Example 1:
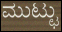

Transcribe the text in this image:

ಮುಟ್ಟು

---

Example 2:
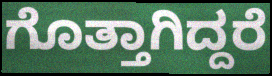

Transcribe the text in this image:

ಗೊತ್ತಾಗಿದ್ದರೆ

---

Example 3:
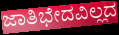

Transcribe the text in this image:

ಜಾತಿಭೇದವಿಲ್ಲದ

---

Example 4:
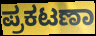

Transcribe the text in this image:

ಪ್ರಕಟಣಾ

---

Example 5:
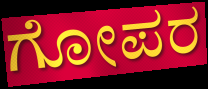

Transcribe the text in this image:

ಗೋಪರ